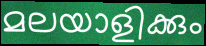
മലയാളിക്കും